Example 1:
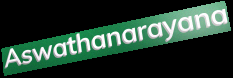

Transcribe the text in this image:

Aswathanarayana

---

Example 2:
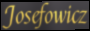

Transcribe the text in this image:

Josefowicz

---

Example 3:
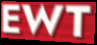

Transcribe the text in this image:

EWT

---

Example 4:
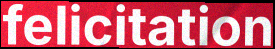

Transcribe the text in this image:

felicitation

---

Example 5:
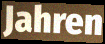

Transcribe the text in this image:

Jahren